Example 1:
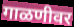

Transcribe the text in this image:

गाळणीवर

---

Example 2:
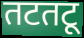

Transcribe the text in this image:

तटतटू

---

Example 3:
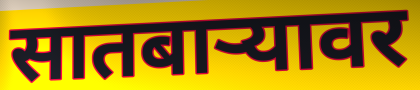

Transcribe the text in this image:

सातबाऱ्यावर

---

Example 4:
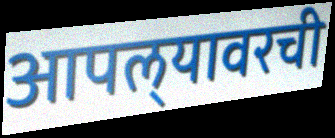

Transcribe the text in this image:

आपल्यावरची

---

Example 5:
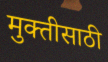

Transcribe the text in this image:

मुक्तीसाठी